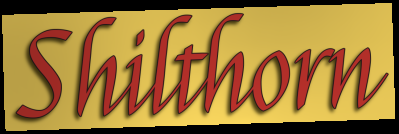
Shilthorn